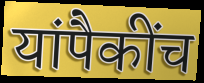
यांपैकींच